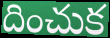
దించుక